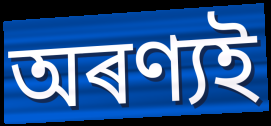
অৰণ্যই